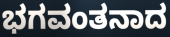
ಭಗವಂತನಾದ